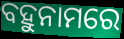
ବହୁନାମରେ